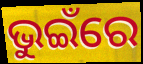
ଭୁଇଁରେ